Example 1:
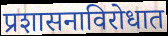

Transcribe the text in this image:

प्रशासनाविरोधात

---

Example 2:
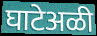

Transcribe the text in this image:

घाटेअळी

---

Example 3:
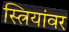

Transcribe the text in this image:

स्त्रियांवर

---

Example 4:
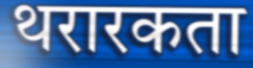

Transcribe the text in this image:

थरारकता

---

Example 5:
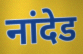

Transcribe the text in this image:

नांदेड